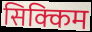
सिक्किम